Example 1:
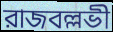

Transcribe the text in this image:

রাজবল্লভী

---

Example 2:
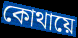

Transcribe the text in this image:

কোথায়ে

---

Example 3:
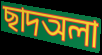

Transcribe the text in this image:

ছাদঅলা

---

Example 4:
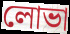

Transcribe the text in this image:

লোভা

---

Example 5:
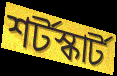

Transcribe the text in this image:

শর্টস্কার্ট